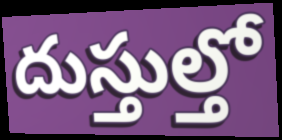
దుస్తుల్తో